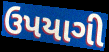
ઉપયાગી